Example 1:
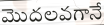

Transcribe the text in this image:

మొదలవగానే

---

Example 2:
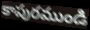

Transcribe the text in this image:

కాపురముండి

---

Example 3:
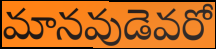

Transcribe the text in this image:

మానవుడెవరో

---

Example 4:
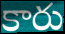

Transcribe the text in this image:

కారు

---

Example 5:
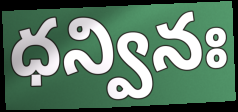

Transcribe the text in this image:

ధన్వినః